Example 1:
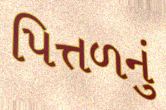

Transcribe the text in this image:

પિત્તળનું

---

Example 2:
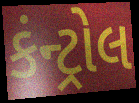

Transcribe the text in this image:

કંન્ટ્રોલ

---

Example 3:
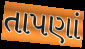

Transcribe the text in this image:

તાપણાં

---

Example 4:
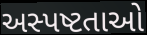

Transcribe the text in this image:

અસ્પષ્ટતાઓ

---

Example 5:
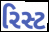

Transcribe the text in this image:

રિસ્ટ